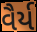
વૈર્ય